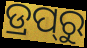
ଡ୍ରପ୍‍ରୁ